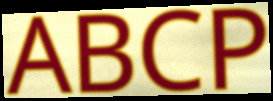
ABCP